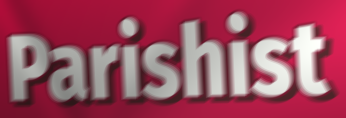
Parishist